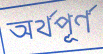
অৰ্থপূৰ্ণ